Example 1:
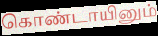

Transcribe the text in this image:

கொண்டாயினும்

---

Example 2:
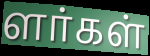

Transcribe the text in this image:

ளர்கள்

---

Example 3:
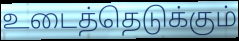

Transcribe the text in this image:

உடைத்தெடுக்கும்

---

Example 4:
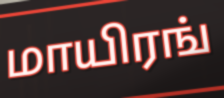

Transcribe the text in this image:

மாயிரங்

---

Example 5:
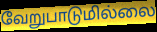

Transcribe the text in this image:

வேறுபாடுமில்லை